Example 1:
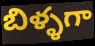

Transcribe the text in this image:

బిళ్ళగా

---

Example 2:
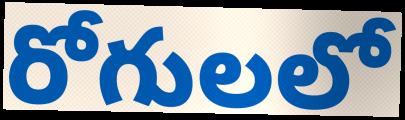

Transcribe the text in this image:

రోగులలో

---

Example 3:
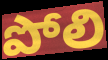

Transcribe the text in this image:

పోలి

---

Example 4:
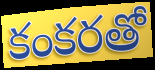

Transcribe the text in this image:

కంకరతో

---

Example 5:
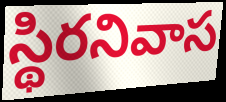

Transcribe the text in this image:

స్థిరనివాస